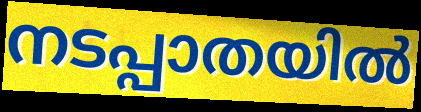
നടപ്പാതയിൽ